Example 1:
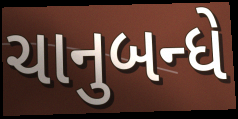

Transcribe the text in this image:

ચાનુબન્ધે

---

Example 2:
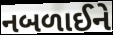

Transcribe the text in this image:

નબળાઈને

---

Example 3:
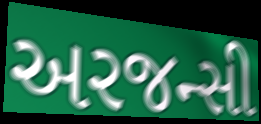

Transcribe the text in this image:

અરજન્સી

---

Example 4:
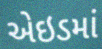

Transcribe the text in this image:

એઇડમાં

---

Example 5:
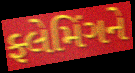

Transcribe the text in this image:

ફ્લેમિંગને